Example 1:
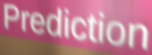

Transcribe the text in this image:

Prediction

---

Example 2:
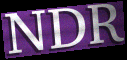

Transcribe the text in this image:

NDR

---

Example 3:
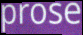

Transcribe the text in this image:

prose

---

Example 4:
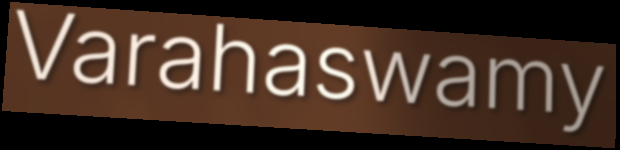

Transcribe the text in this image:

Varahaswamy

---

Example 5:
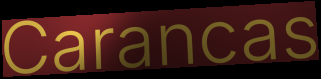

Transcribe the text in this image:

Carancas